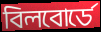
বিলবোর্ডে